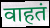
वाहतं